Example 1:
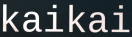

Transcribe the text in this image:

kaikai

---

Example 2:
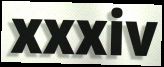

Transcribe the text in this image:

xxxiv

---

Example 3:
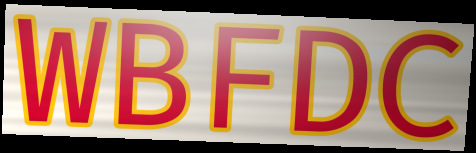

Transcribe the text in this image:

WBFDC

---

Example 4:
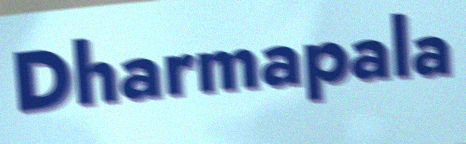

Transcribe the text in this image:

Dharmapala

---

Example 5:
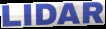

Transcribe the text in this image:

LIDAR